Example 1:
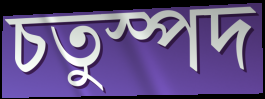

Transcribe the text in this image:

চতুস্পদ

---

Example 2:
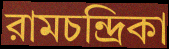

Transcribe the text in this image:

রামচন্দ্রিকা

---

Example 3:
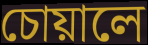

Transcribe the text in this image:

চোয়ালে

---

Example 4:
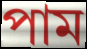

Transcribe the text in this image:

পাম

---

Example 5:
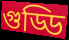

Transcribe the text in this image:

গুড্ডি